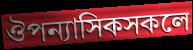
ঔপন্যাসিকসকলে